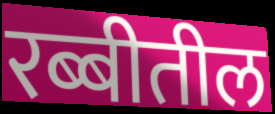
रब्बीतील